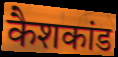
कैशकांड